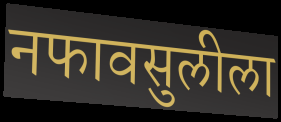
नफावसुलीला